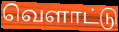
வெளாட்டு